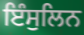
ਇੰਸੁਲਿਨ